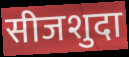
सीजशुदा